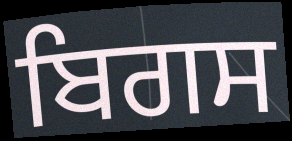
ਬਿਗਸ